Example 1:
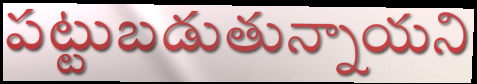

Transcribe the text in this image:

పట్టుబడుతున్నాయని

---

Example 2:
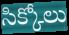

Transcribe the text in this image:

సిక్కోలు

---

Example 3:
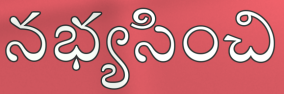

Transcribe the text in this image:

నభ్యసించి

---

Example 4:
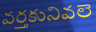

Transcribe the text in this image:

వర్తకునివలె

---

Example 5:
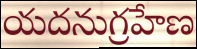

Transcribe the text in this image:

యదనుగ్రహేణ